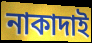
নাকাদাই